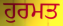
ਹੁਰਮਤ